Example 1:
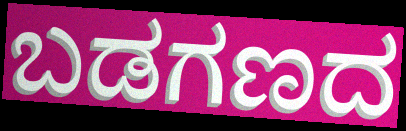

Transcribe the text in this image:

ಬಡಗಣದ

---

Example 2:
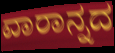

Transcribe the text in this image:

ವಾರಾನ್ನದ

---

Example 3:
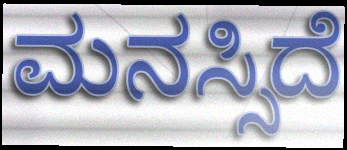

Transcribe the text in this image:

ಮನಸ್ಸಿದೆ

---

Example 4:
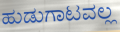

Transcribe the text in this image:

ಹುಡುಗಾಟವಲ್ಲ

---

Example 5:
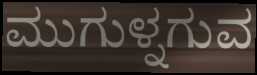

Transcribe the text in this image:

ಮುಗುಳ್ನಗುವ